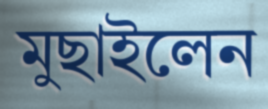
মুছাইলেন